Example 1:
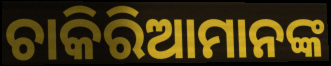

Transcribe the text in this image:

ଚାକିରିଆମାନଙ୍କ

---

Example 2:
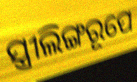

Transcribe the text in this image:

ସ୍ତ୍ରୀଲିଙ୍ଗରୂପେ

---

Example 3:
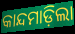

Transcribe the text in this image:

କାନ୍ଦମାଡ଼ିଲା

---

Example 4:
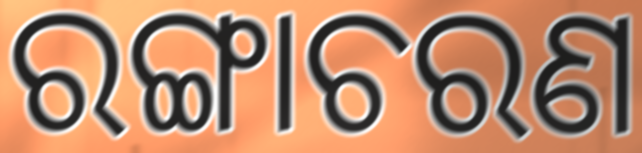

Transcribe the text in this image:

ରଙ୍ଗାଚରଣ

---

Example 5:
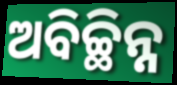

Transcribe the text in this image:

ଅବିଚ୍ଛିନ୍ନ